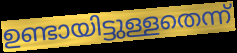
ഉണ്ടായിട്ടുള്ളതെന്ന്